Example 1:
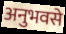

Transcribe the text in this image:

अनुभवसे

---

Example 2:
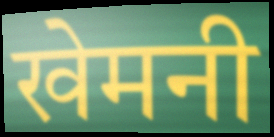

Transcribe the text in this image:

खेमनी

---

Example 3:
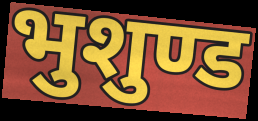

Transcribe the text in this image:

भुशुण्ड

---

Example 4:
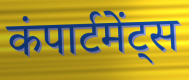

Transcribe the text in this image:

कंपार्टमेंट्स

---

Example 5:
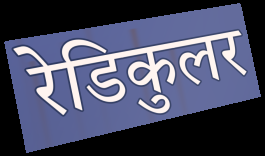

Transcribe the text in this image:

रेडिकुलर